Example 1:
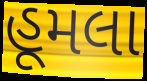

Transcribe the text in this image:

હૂમલા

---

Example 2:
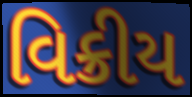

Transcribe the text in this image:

વિક્રીય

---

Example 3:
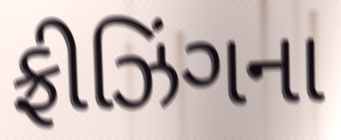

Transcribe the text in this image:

ફ્રીઝિંગના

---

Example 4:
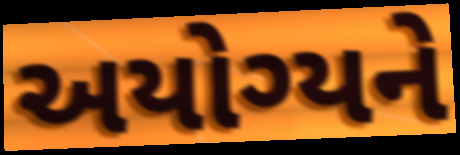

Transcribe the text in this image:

અયોગ્યને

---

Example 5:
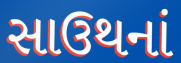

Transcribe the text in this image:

સાઉથનાં